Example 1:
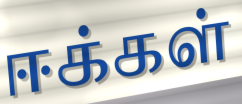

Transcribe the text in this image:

ஈக்கள்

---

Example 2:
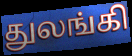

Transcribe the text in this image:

துலங்கி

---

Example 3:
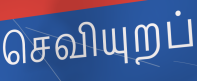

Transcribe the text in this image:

செவியுறப்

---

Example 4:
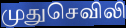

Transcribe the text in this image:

முதுசெவிலி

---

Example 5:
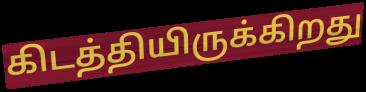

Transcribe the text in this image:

கிடத்தியிருக்கிறது